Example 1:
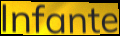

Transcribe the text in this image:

Infante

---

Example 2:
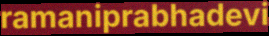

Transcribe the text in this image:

ramaniprabhadevi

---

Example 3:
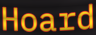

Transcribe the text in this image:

Hoard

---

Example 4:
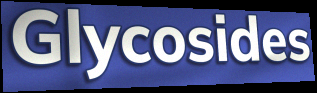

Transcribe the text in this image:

Glycosides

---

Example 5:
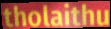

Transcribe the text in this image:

tholaithu